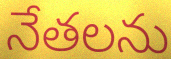
నేతలను